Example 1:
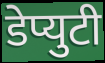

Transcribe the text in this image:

डेप्युटी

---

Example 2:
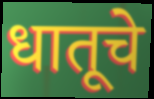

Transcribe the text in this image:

धातूचे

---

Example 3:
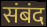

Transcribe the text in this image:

संबंद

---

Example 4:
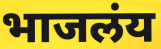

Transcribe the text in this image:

भाजलंय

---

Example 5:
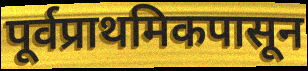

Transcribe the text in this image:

पूर्वप्राथमिकपासून